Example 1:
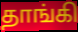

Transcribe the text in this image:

தாங்கி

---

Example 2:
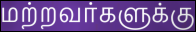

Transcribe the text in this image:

மற்றவர்களுக்கு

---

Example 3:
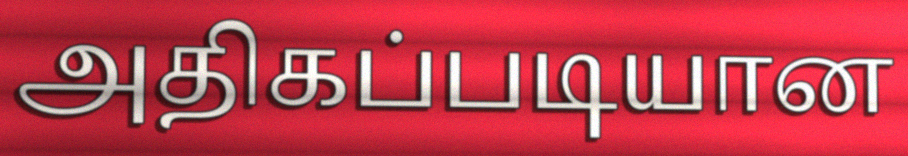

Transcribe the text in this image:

அதிகப்படியான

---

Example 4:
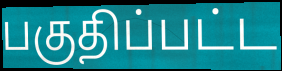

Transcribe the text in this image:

பகுதிப்பட்ட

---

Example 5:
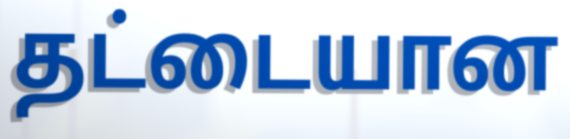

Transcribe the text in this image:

தட்டையான